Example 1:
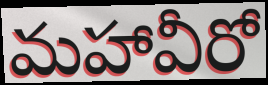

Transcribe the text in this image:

మహావీరో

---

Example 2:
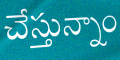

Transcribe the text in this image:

చేస్తున్నాం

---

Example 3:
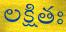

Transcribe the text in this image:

లక్షితః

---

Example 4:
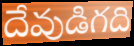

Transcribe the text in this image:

దేవుడిగది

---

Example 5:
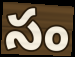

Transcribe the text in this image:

సం